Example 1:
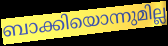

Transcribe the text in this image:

ബാക്കിയൊന്നുമില്ല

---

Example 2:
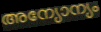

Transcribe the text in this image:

അന്യോന്യം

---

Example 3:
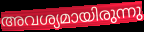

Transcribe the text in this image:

അവശ്യമായിരുന്നു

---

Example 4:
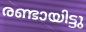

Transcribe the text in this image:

രണ്ടായിട്ടു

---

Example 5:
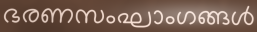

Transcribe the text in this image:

ഭരണസംഘാംഗങ്ങൾ